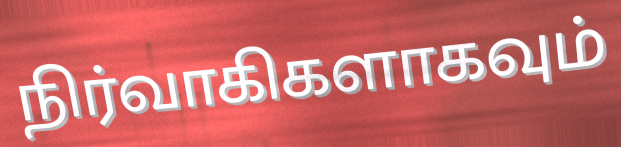
நிர்வாகிகளாகவும்